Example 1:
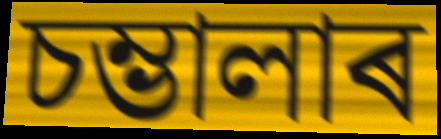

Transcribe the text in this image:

চম্ভালাৰ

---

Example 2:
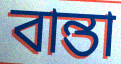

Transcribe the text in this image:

বান্তা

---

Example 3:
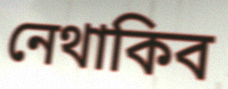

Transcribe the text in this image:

নেথাকিব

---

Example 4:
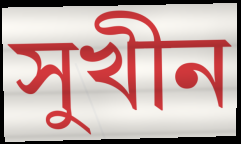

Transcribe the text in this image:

সুখীন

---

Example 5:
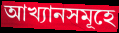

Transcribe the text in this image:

আখ্যানসমূহে